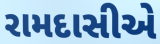
રામદાસીએ